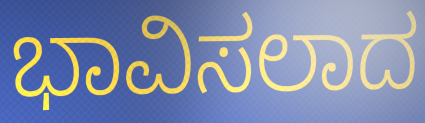
ಭಾವಿಸಲಾದ